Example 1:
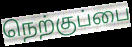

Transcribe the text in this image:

நெற்குப்பை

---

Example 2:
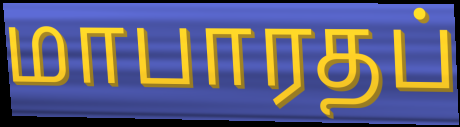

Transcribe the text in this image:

மாபாரதப்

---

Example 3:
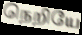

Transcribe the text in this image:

நெறியே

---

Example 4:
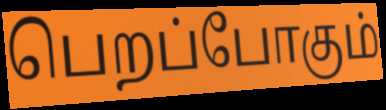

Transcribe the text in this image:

பெறப்போகும்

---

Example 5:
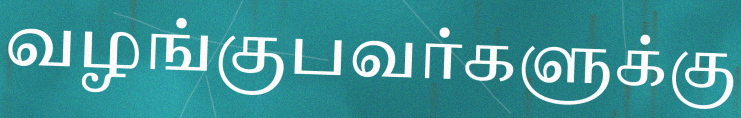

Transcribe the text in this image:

வழங்குபவர்களுக்கு